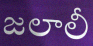
జలాలీ